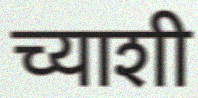
च्याशी